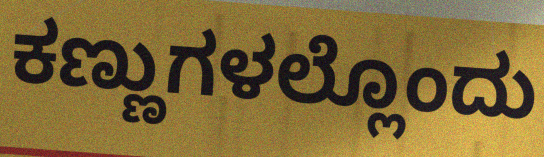
ಕಣ್ಣುಗಳಲ್ಲೊಂದು